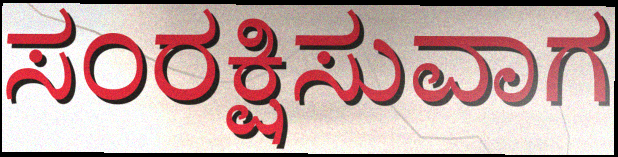
ಸಂರಕ್ಷಿಸುವಾಗ